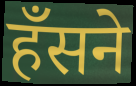
हँसने